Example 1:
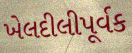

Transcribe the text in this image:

ખેલદીલીપૂર્વક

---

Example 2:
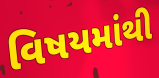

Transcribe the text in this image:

વિષયમાંથી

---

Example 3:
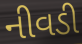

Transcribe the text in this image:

નીવડી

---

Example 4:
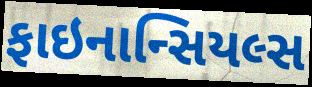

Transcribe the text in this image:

ફાઇનાન્સિયલ્સ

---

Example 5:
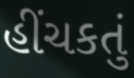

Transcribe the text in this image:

હીંચકતું